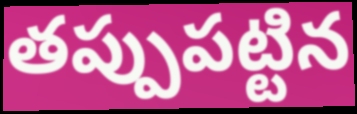
తప్పుపట్టిన